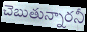
చెబుతున్నారనీ